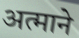
अत्माने